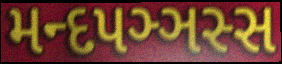
મન્દપઞ્ઞસ્સ